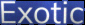
Exotic